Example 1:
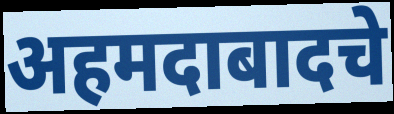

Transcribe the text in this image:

अहमदाबादचे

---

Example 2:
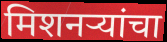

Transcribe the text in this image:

मिशनऱ्यांचा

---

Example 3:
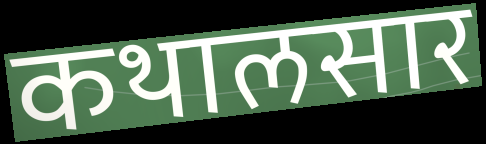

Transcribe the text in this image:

कथालसार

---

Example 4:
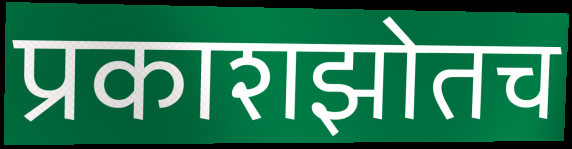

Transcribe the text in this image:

प्रकाशझोतच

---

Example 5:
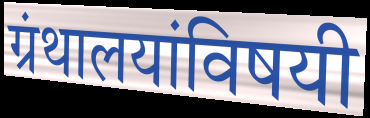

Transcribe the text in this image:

ग्रंथालयांविषयी